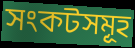
সংকটসমূহ